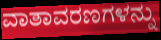
ವಾತಾವರಣಗಳನ್ನು